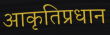
आकृतिप्रधान